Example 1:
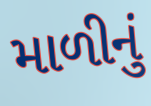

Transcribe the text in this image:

માળીનું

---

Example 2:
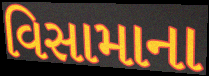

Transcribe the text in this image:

વિસામાના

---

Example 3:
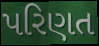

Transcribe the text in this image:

પરિણત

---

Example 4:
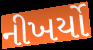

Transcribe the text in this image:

નીખર્યો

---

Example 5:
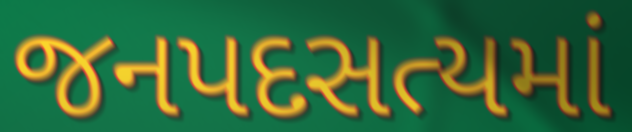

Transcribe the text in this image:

જનપદસત્યમાં